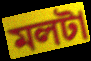
মলটা